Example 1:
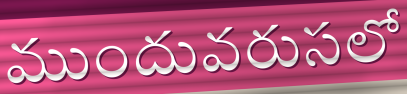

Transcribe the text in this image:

ముందువరుసలో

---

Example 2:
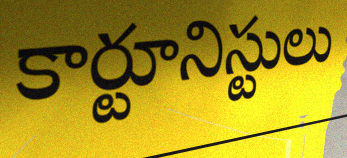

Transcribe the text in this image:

కార్టూనిస్టులు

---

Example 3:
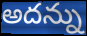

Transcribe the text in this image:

అదన్ను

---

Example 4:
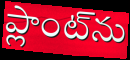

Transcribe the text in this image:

ప్లాంట్‌ను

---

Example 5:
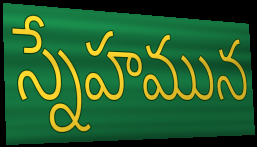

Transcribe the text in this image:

స్నేహమున